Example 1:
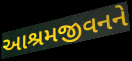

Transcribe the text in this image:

આશ્રમજીવનને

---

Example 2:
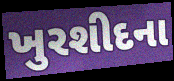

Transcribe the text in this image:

ખુરશીદના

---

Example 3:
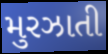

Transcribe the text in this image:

મુરઝાતી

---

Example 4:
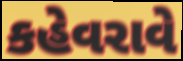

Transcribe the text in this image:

કહેવરાવે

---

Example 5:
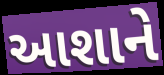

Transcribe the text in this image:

આશાને